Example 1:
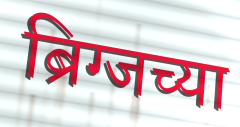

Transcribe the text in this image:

ब्रिग्जच्या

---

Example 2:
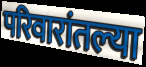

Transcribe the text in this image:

परिवारांतल्या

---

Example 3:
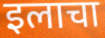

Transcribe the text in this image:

इलाचा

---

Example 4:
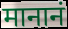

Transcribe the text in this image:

मानानं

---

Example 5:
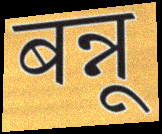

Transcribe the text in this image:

बन्नू